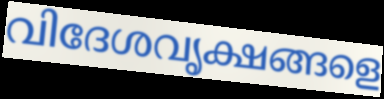
വിദേശവൃക്ഷങ്ങളെ